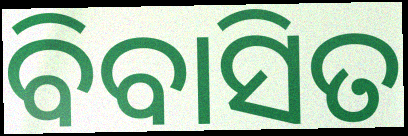
ବିବାସିତ